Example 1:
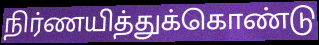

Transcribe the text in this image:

நிர்ணயித்துக்கொண்டு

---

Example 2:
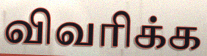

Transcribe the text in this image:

விவரிக்க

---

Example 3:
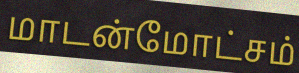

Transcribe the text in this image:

மாடன்மோட்சம்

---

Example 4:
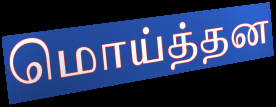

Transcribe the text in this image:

மொய்த்தன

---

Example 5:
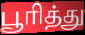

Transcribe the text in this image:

பூரித்து